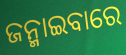
ଜନ୍ମାଇବାରେ